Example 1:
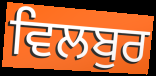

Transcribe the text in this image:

ਵਿਲਬੁਰ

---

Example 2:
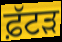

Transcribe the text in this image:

ਫ਼ੱਟੜ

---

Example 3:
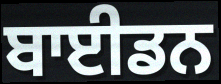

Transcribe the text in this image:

ਬਾਈਡਨ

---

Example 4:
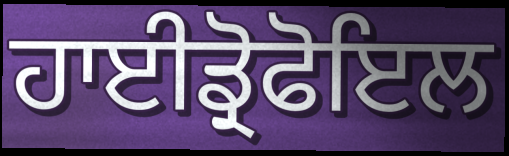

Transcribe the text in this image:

ਹਾਈਡ੍ਰੋਫੋਇਲ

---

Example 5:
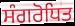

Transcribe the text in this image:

ਸੰਗਰੋਧਿਤ